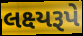
લક્ષ્યરૂપે